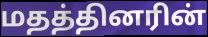
மதத்தினரின்